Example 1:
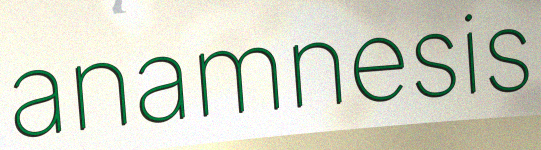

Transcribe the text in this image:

anamnesis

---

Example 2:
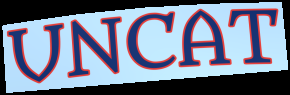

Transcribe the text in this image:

UNCAT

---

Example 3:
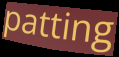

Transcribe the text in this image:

patting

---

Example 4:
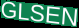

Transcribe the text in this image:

GLSEN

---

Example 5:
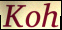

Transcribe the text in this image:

Koh